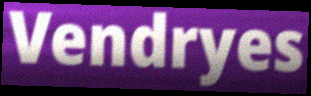
Vendryes